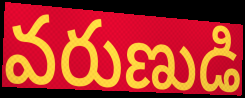
వరుణుడి